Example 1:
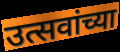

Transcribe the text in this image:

उत्सवांच्या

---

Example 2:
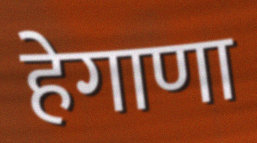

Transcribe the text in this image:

हेगाणा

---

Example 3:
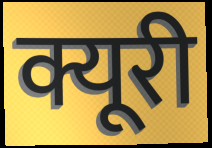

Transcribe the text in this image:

क्यूरी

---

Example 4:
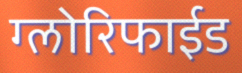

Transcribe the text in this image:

ग्लोरिफाईड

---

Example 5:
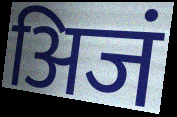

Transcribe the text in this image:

अिजं